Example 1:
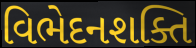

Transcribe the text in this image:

વિભેદનશક્તિ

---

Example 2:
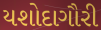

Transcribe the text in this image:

યશોદાગૌરી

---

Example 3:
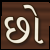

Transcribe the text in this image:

છો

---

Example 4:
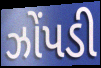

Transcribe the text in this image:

ઝોંપડી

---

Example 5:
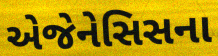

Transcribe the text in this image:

એજેનેસિસના